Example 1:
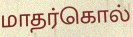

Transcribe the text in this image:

மாதர்கொல்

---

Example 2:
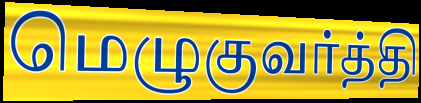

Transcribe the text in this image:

மெழுகுவர்த்தி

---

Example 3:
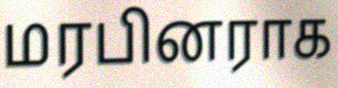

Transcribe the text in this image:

மரபினராக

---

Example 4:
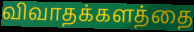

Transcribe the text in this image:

விவாதக்களத்தை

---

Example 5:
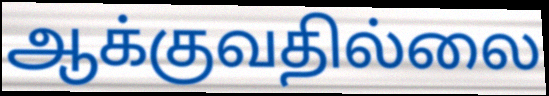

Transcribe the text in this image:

ஆக்குவதில்லை